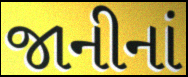
જાનીનાં